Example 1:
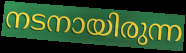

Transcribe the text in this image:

നടനായിരുന്ന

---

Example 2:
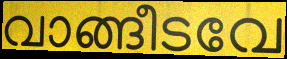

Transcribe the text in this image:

വാങ്ങീടവേ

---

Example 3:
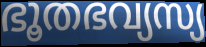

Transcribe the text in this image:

ഭൂതഭവ്യസ്യ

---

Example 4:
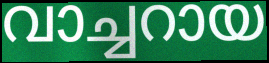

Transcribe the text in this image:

വാച്ചറായ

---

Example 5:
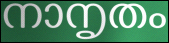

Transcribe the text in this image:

നാനൃതം